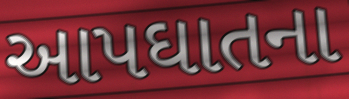
આપઘાતના